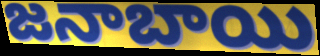
జనాబాయి